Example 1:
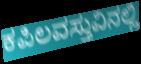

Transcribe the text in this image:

ಕಪಿಲವಸ್ತುವಿನಲ್ಲಿ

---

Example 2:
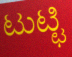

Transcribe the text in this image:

ಟುಟ್ಟಿ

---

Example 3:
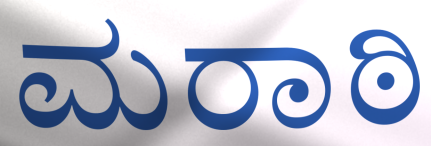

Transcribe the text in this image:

ಮರಾಠಿ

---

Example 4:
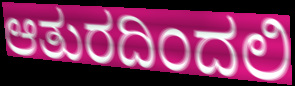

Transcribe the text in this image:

ಆತುರದಿಂದಲಿ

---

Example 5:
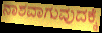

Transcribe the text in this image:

ನಾಶವಾಗುವುದಕ್ಕೆ